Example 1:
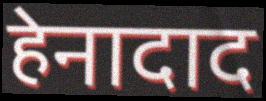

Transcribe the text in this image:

हेनादाद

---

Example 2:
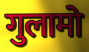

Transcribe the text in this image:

गुलामो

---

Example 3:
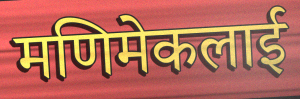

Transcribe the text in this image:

मणिमेकलाई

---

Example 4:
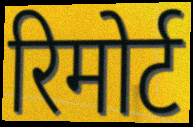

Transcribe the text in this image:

रिमोर्ट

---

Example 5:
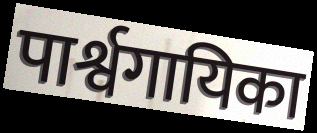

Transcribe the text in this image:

पार्श्वगायिका